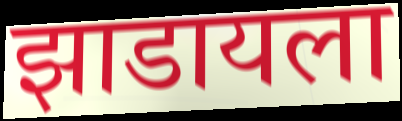
झाडायला